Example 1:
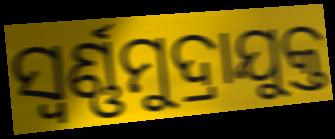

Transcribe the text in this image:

ସ୍ବର୍ଣ୍ଣମୁଦ୍ରାଯୁକ୍ତ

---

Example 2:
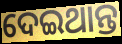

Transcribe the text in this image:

ଦେଇଥାନ୍ତ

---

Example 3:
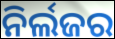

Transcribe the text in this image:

ନିର୍ଲଜର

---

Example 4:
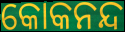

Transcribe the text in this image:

କୋକନନ୍ଦ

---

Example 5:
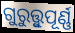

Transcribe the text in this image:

ଗୁରୁତ୍ତ୍ୱୁପୂର୍ଣ୍ଣ